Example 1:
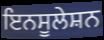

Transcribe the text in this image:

ਇਨਸੂਲੇਸ਼ਨ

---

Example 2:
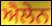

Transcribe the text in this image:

ਐਲੇਨ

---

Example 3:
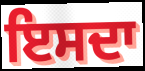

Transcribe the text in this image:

ਇਸਦਾ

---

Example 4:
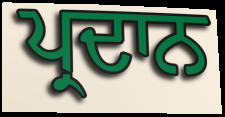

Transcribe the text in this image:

ਪ੍ਰਦਾਨ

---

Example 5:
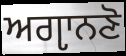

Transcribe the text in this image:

ਅਗੵਾਨਣੋ